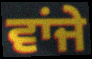
ਵਾਂਜੇ